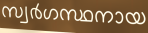
സ്വർഗസ്ഥനായ